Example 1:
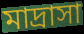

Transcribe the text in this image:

মাদ্রাসা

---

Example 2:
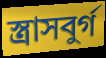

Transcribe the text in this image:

স্ত্রাসবুর্গ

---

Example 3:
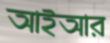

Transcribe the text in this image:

আইআর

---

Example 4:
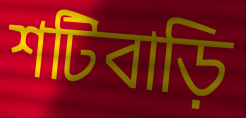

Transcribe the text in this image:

শটিবাড়ি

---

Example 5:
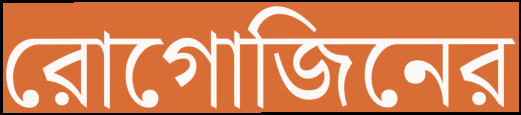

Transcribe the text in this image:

রোগোজিনের